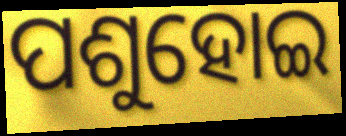
ପଶୁହୋଇ